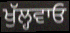
ਖੁੱਲ੍ਹਵਾਓ